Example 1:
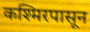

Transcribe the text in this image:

कश्मिरपासून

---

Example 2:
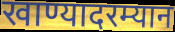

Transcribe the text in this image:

खाण्यादरम्यान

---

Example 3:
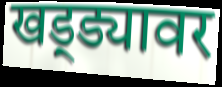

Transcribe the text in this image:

खड्ड्यावर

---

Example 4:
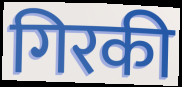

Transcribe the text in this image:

गिरकी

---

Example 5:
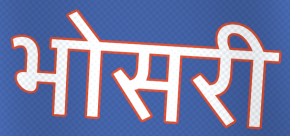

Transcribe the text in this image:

भोसरी